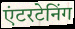
एंटरटेनिंग